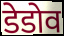
डेडोव